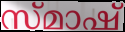
സ്മാഷ്